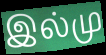
இல்மு